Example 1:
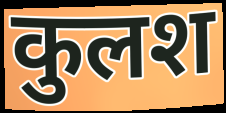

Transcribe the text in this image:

कुलश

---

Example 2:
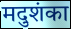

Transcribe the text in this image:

मदुशंका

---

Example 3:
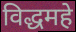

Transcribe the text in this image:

विद्धमहे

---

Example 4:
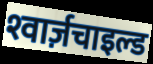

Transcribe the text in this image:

श्वार्ज़चाइल्ड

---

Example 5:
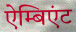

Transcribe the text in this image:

ऐम्बिएंट